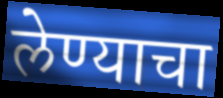
लेण्याचा